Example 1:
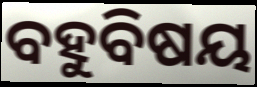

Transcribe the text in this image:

ବହୁବିଷୟ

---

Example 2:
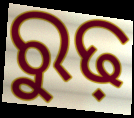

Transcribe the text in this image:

ରୁଢ଼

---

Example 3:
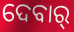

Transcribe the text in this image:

ଦେବାର୍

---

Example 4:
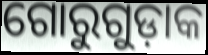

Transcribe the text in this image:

ଗୋରୁଗୁଡ଼ାକ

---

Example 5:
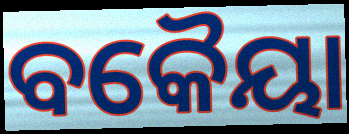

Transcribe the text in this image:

ବକୈୟା